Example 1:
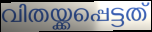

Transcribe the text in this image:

വിതയ്ക്കപ്പെട്ടത്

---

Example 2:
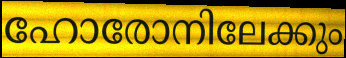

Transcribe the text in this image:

ഹോരോനിലേക്കും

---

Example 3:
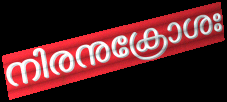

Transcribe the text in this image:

നിരനുക്രോശഃ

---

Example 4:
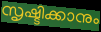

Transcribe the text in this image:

സൃഷ്ടിക്കാനും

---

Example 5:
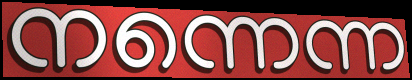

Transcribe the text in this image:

നന്നെന്ന